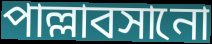
পাল্লাবসানো